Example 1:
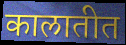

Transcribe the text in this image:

कालातीत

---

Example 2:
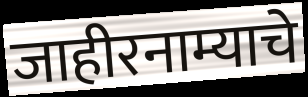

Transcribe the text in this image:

जाहीरनाम्याचे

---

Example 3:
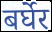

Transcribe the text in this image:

बर्घेर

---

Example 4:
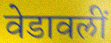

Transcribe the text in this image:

वेडावलीं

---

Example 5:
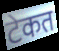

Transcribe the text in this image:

टेकत